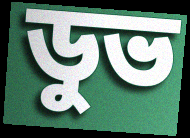
ডুভ